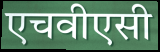
एचवीएसी